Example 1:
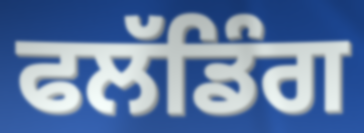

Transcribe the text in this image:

ਫਲੱਡਿੰਗ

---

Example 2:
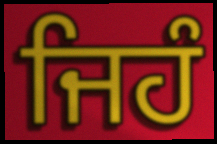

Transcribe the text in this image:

ਜਿਹੰ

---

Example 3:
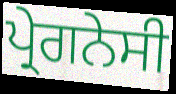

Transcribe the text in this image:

ਪ੍ਰੇਗਨੇਸੀ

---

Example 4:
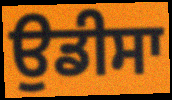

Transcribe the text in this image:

ਉਡੀਸਾ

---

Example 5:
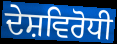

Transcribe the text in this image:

ਦੇਸ਼ਵਿਰੋਧੀ